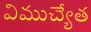
విముచ్యేత